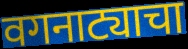
वगनाट्याचा